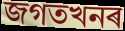
জগতখনৰ